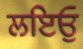
ਲਇਓੁ